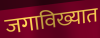
जगाविख्यात